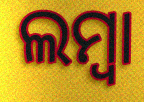
ଲମ୍ବା